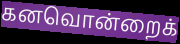
கனவொன்றைக்